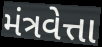
મંત્રવેત્તા